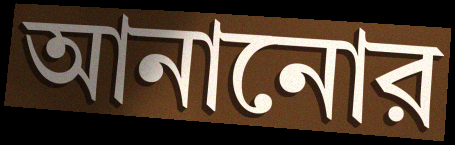
আনানোর